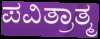
ಪವಿತ್ರಾತ್ಮ